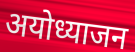
अयोध्याजन